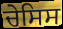
ਚੇਸਿਸ